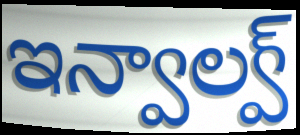
ఇన్వాల్వ్